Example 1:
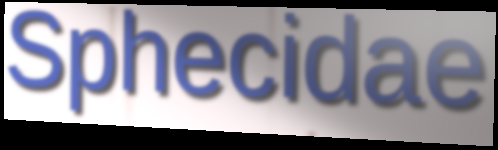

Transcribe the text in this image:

Sphecidae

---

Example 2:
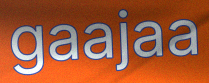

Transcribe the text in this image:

gaajaa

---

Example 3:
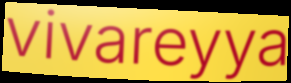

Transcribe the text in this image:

vivareyya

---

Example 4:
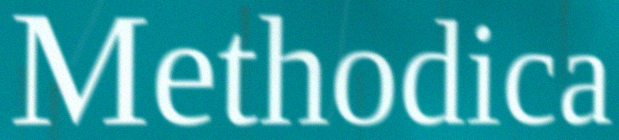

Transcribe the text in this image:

Methodica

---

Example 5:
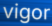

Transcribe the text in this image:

vigor